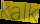
kalk